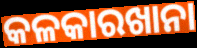
କଳକାରଖାନା